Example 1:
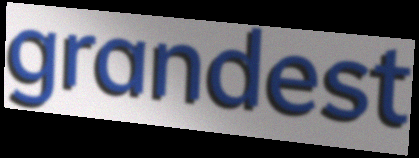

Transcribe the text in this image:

grandest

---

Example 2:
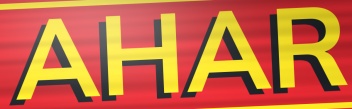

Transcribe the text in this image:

AHAR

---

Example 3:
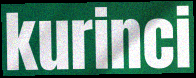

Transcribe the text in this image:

kurinci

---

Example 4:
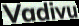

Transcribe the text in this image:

Vadivu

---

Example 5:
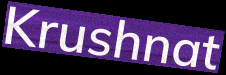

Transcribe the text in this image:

Krushnat